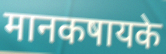
मानकषायके